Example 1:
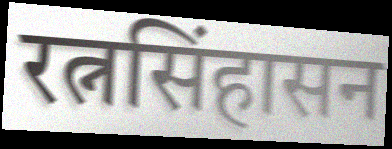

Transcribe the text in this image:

रत्नसिंहासन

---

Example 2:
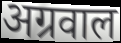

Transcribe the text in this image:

अग्रवाल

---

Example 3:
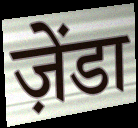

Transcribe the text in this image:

ज़ेंडा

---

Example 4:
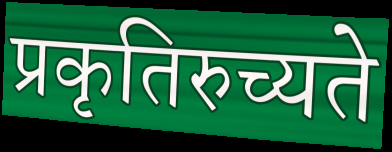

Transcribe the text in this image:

प्रकृतिरुच्यते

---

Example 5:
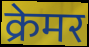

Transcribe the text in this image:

क्रेमर